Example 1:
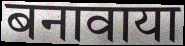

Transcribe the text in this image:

बनावाया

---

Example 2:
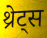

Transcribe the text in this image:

थ्रेट्स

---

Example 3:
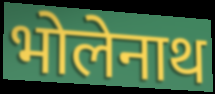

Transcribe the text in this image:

भोलेनाथ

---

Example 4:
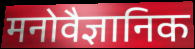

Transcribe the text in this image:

मनोवैज्ञानिक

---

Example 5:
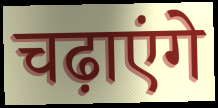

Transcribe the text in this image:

चढ़ाएंगे